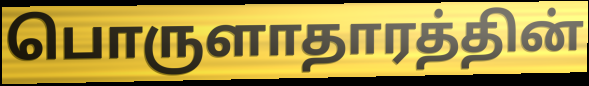
பொருளாதாரத்தின்